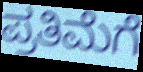
ಪ್ರತಿಮೆಗೆ